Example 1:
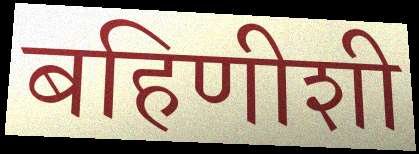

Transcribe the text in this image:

बहिणीशी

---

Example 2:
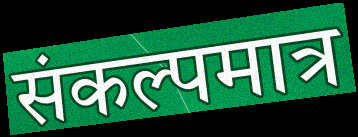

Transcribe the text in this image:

संकल्पमात्र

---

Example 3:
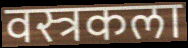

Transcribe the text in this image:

वस्त्रकला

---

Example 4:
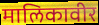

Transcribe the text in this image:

मालिकावीर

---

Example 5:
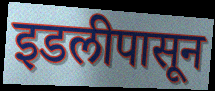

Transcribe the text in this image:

इडलीपासून